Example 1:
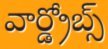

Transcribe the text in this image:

వార్డ్రోబ్స్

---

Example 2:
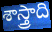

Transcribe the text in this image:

శాస్త్రాది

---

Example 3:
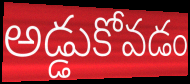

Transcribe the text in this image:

అడ్డుకోవడం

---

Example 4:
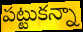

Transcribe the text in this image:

పట్టుకన్నా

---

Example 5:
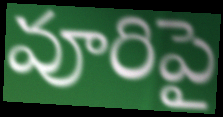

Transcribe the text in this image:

వూరిపై